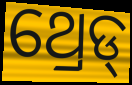
ଥ୍ରେଡ୍